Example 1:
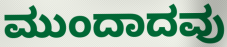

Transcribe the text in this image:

ಮುಂದಾದವು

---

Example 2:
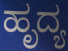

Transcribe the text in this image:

ಹೃದ್ಯ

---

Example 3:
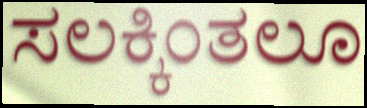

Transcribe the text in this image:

ಸಲಕ್ಕಿಂತಲೂ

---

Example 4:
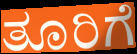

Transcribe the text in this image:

ತೂರಿಗೆ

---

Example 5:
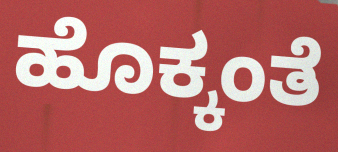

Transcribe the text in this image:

ಹೊಕ್ಕಂತೆ